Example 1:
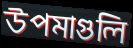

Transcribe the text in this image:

উপমাগুলি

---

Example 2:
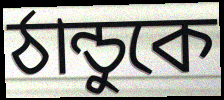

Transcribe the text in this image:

ঠান্ডুকে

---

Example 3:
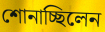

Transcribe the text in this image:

শোনাচ্ছিলেন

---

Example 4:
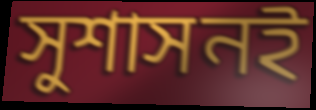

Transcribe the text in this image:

সুশাসনই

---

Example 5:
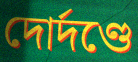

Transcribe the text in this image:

দোর্দণ্ডে